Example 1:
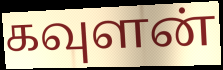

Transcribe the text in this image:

கவுளன்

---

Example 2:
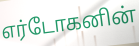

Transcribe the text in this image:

எர்டோகனின்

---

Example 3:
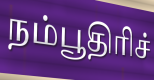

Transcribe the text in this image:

நம்பூதிரிச்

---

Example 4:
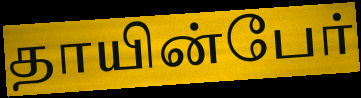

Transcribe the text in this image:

தாயின்பேர்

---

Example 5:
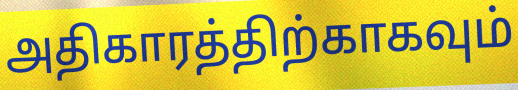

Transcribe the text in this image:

அதிகாரத்திற்காகவும்